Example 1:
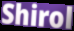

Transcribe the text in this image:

Shirol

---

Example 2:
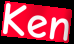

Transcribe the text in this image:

Ken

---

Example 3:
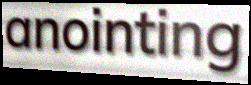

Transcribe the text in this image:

anointing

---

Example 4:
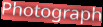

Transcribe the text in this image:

Photograph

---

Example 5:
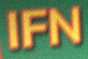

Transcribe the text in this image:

IFN